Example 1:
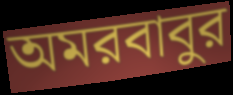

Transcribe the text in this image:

অমরবাবুর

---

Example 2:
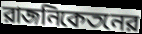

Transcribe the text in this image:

রাজনিকেতনের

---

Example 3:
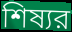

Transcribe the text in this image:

শিষ্যর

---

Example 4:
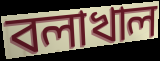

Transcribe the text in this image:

বলাখাল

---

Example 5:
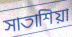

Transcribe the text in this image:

সাতাশিয়া